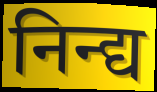
निन्द्य